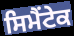
ਸਿਮੈਂਟੇਕ